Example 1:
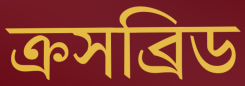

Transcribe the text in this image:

ক্রসব্রিড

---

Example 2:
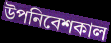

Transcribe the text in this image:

উপনিবেশকাল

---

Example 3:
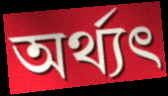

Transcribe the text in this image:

অর্থ্যৎ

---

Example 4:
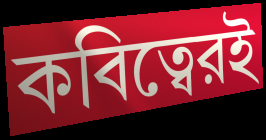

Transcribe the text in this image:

কবিত্বেরই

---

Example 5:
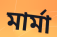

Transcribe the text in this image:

মার্মা